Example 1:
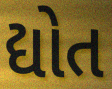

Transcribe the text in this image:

દ્યોત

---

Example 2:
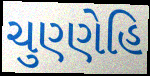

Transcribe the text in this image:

ચુણ્ણેહિ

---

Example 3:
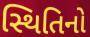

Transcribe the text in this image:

સ્થિતિનો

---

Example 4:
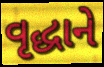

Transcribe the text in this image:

વૃદ્ધાને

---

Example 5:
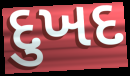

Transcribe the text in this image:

દુખદ